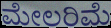
ಮೇಲರಿಮೆ